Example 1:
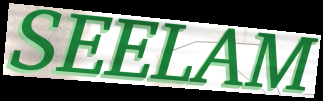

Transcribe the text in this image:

SEELAM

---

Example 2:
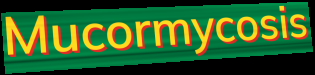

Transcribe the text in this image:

Mucormycosis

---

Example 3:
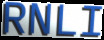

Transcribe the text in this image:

RNLI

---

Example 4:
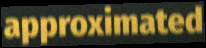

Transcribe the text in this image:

approximated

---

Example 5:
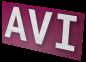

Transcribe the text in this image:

AVI